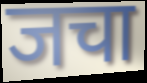
जचा